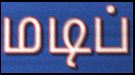
மடிப்